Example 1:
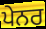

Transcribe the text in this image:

ਪੇਨਰ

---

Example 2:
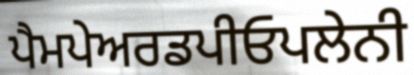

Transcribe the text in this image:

ਪੈਮਪੇਅਰਡਪੀਓਪਲੇਨੀ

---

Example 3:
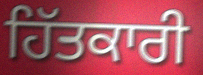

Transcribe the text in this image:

ਹਿੱਤਕਾਰੀ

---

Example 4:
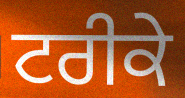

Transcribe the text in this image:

ਟਰੀਕੇ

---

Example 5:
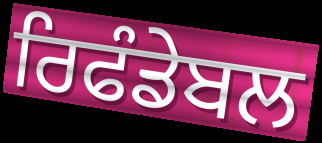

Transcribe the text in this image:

ਰਿਫੰਡੇਬਲ